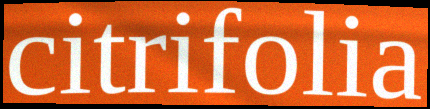
citrifolia